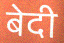
बेदी